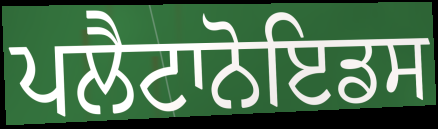
ਪਲੈਟਾਨੋਇਡਸ